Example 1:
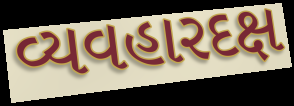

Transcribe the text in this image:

વ્યવહારદક્ષ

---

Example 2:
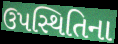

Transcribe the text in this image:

ઉપસ્થિતિના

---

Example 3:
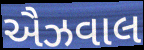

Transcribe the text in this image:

ઐઝવાલ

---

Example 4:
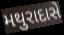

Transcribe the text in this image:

મથુરાદાસે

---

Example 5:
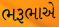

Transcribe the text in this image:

ભરૂભાએ